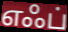
எஃப்